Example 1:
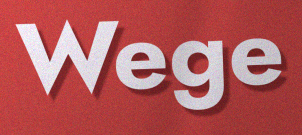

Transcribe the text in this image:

Wege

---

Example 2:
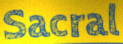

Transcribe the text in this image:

Sacral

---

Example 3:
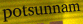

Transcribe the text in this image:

potsunnam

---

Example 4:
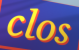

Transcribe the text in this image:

clos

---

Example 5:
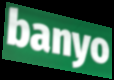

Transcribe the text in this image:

banyo